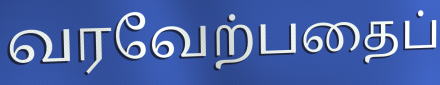
வரவேற்பதைப்